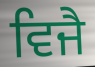
ਵਿਜੈ